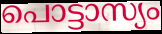
പൊട്ടാസ്യം